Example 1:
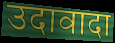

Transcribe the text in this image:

उदावादा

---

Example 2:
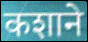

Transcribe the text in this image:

कशाने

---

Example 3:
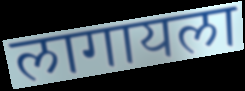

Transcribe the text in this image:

लागायला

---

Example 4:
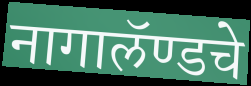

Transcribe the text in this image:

नागालॅण्डचे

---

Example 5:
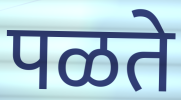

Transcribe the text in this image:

पळते